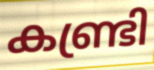
കണ്ട്രി